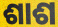
ଶାଶ